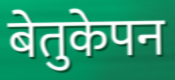
बेतुकेपन